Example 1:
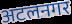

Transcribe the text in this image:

अटलनगर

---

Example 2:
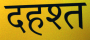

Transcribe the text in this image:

दहश्त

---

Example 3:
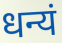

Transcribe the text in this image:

धन्यं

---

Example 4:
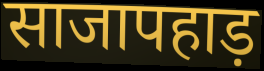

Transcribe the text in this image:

साजापहाड़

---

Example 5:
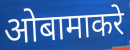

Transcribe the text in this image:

ओबामाकरे